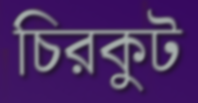
চিরকুট